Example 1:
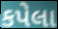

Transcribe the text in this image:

કપેલા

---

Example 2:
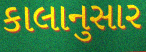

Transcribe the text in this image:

કાલાનુસાર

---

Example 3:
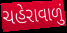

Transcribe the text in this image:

ચહેરાવાળું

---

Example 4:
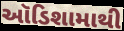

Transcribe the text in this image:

ઑડિશામાથી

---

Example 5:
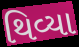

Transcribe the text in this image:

થિવ્યા